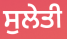
ਸੁਲੇਤੀ